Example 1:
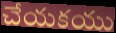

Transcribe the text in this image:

చేయకయు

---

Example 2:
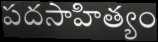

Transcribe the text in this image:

పదసాహిత్యం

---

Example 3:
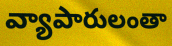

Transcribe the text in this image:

వ్యాపారులంతా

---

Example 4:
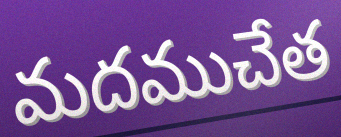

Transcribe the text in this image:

మదముచేత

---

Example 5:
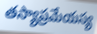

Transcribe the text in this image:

తస్యాప్రమేయస్య